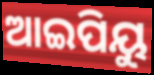
ଆଇପିୟୁ